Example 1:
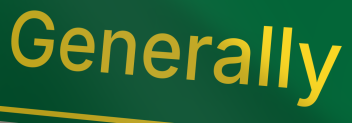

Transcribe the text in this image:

Generally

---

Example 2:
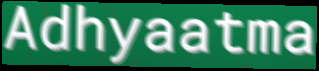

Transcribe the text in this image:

Adhyaatma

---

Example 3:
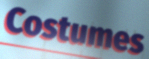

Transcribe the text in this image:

Costumes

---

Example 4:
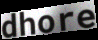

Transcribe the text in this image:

dhore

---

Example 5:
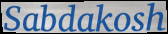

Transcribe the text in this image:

Sabdakosh